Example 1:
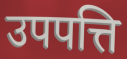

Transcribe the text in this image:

उपपत्ति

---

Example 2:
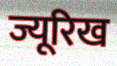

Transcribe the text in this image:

ज्यूरिख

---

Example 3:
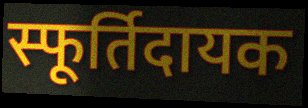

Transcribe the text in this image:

स्फूर्तिदायक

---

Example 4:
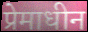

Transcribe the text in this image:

प्रेमाधीन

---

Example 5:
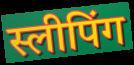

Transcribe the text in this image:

स्लीपिंग